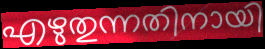
എഴുതുന്നതിനായി